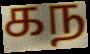
கந